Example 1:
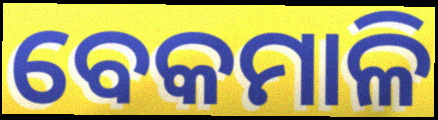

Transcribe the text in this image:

ବେକମାଳି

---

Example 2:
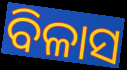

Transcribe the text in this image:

ବିଳାସ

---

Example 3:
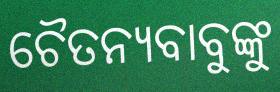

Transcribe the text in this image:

ଚୈତନ୍ୟବାବୁଙ୍କୁ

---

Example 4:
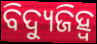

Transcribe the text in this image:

ବିଦ୍ୟୁଜିହ୍ୱ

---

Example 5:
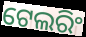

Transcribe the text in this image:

ଟେଲରିଂ